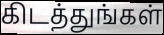
கிடத்துங்கள்